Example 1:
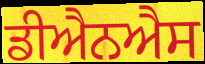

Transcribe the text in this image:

ਡੀਐਨਐਸ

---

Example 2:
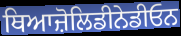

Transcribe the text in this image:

ਥਿਆਜ਼ੋਲਿਡੀਨੇਡੀਓਨ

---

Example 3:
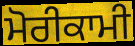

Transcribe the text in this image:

ਮੋਰੀਕਾਮੀ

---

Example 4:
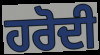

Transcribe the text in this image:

ਹਰੋਦੀ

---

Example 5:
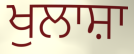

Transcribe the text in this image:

ਖੁਲਾਸ਼ਾ